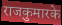
राजकुमारके